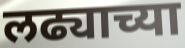
लढ्याच्या